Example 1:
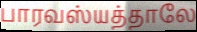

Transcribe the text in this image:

பாரவஸ்யத்தாலே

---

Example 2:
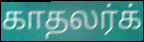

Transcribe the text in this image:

காதலர்க்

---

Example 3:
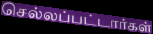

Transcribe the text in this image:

செல்லப்பட்டார்கள்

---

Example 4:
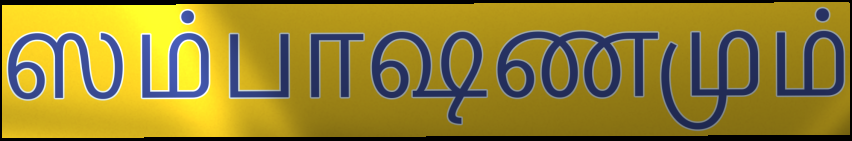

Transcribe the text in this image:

ஸம்பாஷணமும்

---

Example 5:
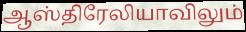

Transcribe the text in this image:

ஆஸ்திரேலியாவிலும்